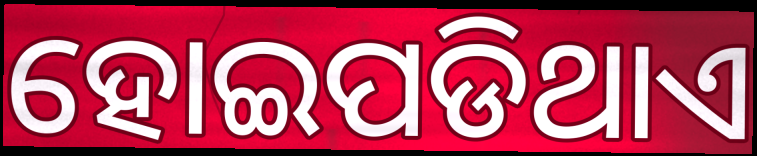
ହୋଇପଡିଥାଏ